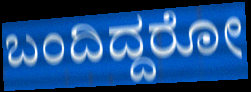
ಬಂದಿದ್ದರೋ